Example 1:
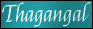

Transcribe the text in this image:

Thagangal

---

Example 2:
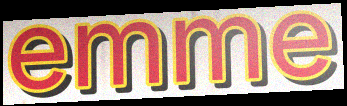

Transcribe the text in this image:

emme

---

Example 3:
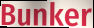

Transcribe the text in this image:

Bunker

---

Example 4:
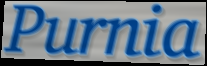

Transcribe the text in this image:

Purnia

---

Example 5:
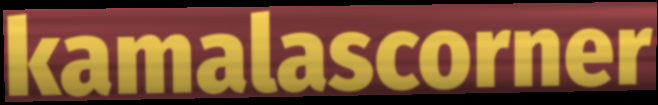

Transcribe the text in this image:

kamalascorner